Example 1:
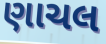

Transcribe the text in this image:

ણાચલ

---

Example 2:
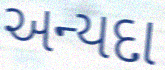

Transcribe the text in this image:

અન્યદા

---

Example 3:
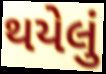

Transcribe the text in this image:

થયેલું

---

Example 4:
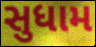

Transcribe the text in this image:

સુધામ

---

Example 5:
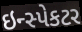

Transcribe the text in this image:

ઇન્સ્પેકટર